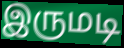
இருமடி